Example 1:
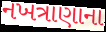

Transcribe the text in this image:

નખત્રાણાના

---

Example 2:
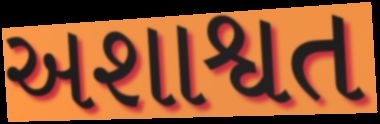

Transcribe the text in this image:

અશાશ્વત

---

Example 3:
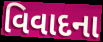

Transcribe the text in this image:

વિવાદના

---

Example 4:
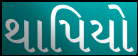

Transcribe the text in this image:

થાપિયો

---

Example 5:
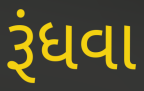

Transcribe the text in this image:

રૂંધવા